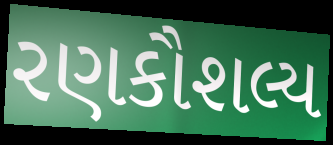
રણકૌશલ્ય